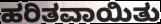
ಹರಿತವಾಯಿತು